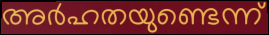
അർഹതയുണ്ടെന്ന്